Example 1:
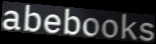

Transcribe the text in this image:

abebooks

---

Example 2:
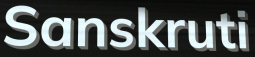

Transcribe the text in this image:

Sanskruti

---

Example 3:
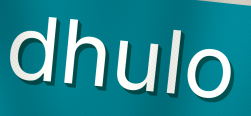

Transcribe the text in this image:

dhulo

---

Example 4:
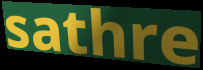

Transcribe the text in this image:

sathre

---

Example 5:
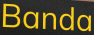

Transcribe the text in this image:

Banda